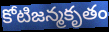
కోటిజన్మకృతం